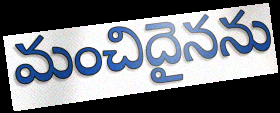
మంచిదైనను